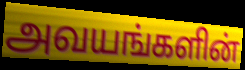
அவயங்களின்